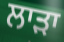
ਲਾੜਾ